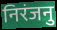
निरंजनु